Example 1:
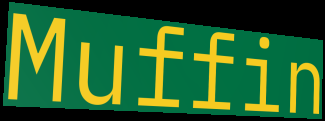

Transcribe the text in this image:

Muffin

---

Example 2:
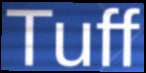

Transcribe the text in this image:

Tuff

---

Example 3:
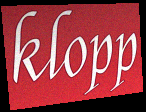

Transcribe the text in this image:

klopp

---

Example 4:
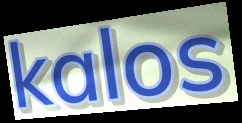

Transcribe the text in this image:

kalos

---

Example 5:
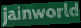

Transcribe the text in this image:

jainworld